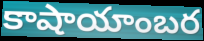
కాషాయాంబర